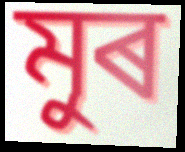
মুৰ